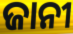
ଜାନୀ